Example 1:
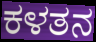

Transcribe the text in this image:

ಕಳತನ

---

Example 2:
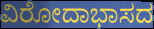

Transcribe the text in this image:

ವಿರೋದಾಭಾಸದ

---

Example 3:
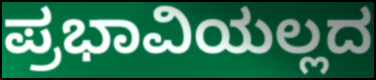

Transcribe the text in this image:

ಪ್ರಭಾವಿಯಲ್ಲದ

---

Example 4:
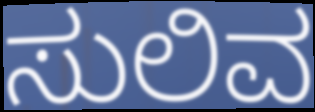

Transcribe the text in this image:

ಸುಲಿವ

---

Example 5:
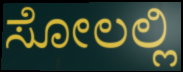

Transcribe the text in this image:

ಸೋಲಲ್ಲಿ